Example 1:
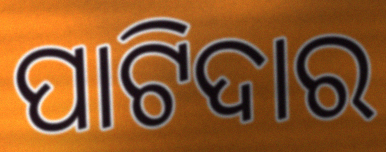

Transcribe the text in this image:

ପାଟିଦାର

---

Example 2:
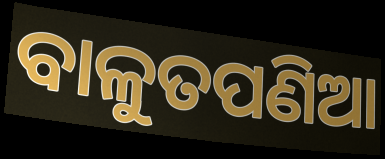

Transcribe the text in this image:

ବାଳୁତପଣିଆ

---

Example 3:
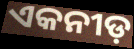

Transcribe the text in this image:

ଏକନୀଡ଼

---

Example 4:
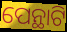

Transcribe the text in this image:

ପେନ୍ଥାଟି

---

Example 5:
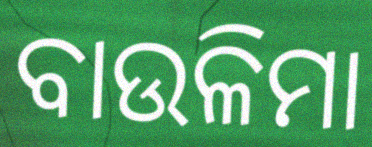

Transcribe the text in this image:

ବାଉଳିମା